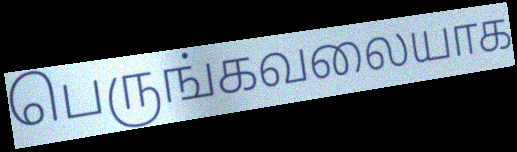
பெருங்கவலையாக